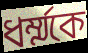
ধর্ম্মকে